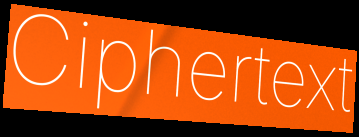
Ciphertext